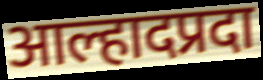
आल्हादप्रदा